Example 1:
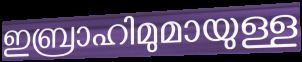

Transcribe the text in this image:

ഇബ്രാഹിമുമായുള്ള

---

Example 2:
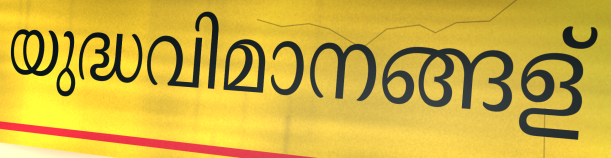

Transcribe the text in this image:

യുദ്ധവിമാനങ്ങള്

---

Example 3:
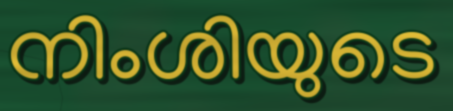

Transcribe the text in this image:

നിംശിയുടെ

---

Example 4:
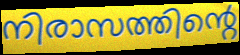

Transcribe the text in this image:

നിരാസത്തിന്റെ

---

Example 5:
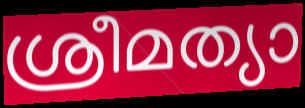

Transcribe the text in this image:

ശ്രീമത്യാ